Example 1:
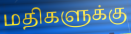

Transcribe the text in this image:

மதிகளுக்கு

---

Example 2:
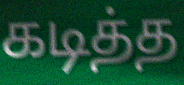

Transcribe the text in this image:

கடித்த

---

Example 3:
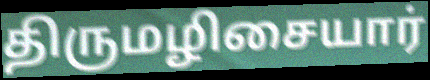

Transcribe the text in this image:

திருமழிசையார்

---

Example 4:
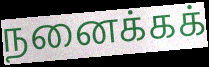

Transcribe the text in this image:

நனைக்கக்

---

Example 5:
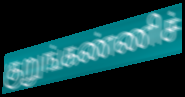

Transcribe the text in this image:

குறுங்கண்ணிச்